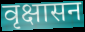
वृक्षासन